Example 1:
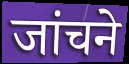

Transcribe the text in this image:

जांचने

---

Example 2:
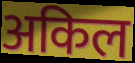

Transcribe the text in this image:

अकिल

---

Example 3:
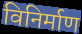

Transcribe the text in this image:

विनिर्माण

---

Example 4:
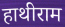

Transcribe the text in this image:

हाथीराम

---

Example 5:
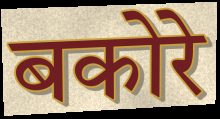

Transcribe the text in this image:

बकोरे